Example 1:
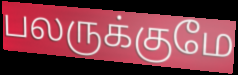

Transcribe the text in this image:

பலருக்குமே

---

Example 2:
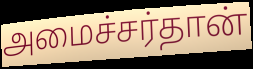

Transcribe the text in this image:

அமைச்சர்தான்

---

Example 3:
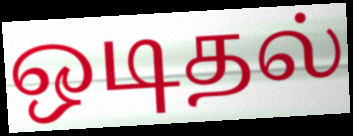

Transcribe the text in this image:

ஒடிதல்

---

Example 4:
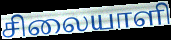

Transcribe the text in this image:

சிலையாளி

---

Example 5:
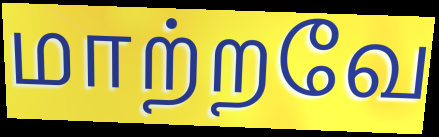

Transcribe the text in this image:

மாற்றவே